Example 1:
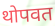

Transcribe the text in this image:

थोपवत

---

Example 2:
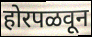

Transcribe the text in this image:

होरपळवून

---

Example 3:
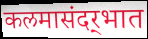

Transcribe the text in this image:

कलमासंदर्भात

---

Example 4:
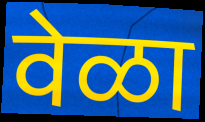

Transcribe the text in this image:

वेळा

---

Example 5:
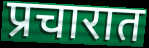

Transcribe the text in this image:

प्रचारात